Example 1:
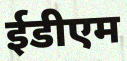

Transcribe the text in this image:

ईडीएम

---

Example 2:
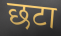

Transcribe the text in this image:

छटा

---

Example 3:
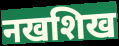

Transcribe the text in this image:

नखशिख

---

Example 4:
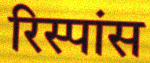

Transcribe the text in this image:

रिस्पांस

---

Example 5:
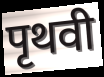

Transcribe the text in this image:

पृथवी